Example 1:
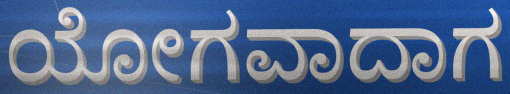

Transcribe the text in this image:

ಯೋಗವಾದಾಗ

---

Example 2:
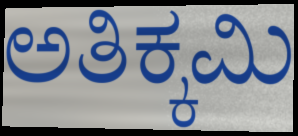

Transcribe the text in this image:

ಅತಿಕ್ಕಮಿ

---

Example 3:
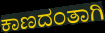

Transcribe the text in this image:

ಕಾಣದಂತಾಗಿ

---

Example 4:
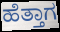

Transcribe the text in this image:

ಹೆತ್ತಾಗ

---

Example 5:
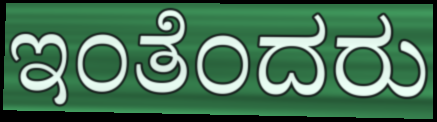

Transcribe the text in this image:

ಇಂತೆಂದರು